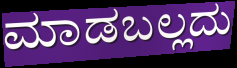
ಮಾಡಬಲ್ಲದು